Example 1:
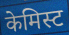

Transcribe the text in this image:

केमिस्ट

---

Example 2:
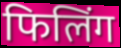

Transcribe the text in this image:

फिलिंग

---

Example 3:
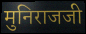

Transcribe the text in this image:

मुनिराजजी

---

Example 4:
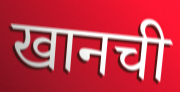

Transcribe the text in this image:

खानची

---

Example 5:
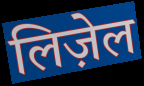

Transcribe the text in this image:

लिज़ेल